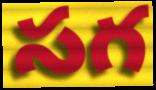
సగ